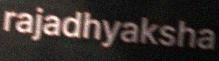
rajadhyaksha